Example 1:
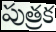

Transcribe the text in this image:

పుత్రక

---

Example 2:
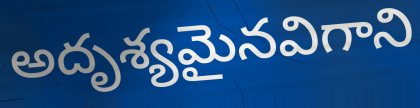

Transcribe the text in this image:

అదృశ్యమైనవిగాని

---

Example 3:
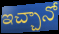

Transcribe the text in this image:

ఇచ్చానో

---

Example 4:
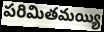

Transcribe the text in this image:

పరిమితమయ్యి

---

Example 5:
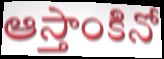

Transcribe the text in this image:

ఆస్తాంకినో